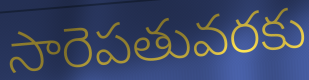
సారెపతువరకు